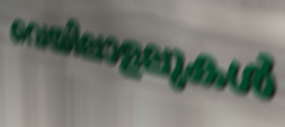
വെയിലാളലുകൾ